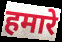
हमारे